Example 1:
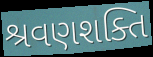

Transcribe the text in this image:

શ્રવણશક્તિ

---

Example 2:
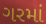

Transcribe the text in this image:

ગરમાં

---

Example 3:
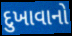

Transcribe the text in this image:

દુખાવાનો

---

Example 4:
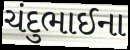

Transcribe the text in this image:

ચંદુભાઈના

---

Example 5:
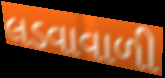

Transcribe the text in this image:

લડવાવાળી